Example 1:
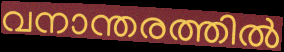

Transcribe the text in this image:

വനാന്തരത്തിൽ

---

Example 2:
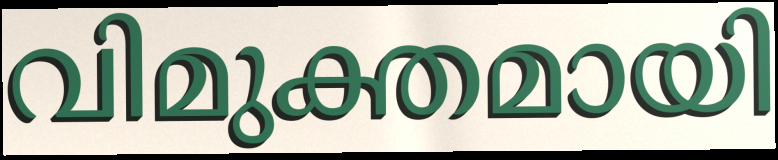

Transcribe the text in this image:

വിമുക്തമായി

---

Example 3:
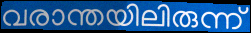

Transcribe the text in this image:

വരാന്തയിലിരുന്ന്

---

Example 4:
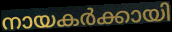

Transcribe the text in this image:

നായകർക്കായി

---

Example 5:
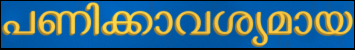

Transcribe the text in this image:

പണിക്കാവശ്യമായ